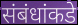
संबंधांकडे